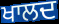
ਖਾਲਦ